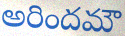
అరిందమౌ